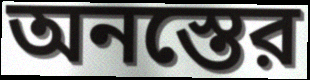
অনস্তের